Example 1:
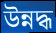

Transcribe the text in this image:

উন্নদ্ধ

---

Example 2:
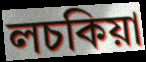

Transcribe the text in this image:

লচকিয়া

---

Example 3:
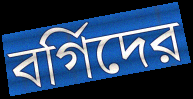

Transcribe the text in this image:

বর্গিদের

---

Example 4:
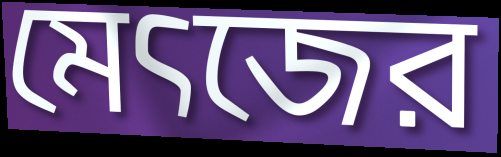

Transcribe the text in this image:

মেৎজের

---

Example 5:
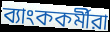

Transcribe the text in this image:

ব্যাংককর্মীরা